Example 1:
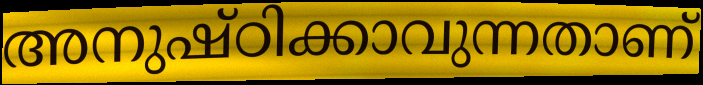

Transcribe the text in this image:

അനുഷ്ഠിക്കാവുന്നതാണ്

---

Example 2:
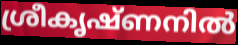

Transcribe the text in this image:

ശ്രീകൃഷ്ണനിൽ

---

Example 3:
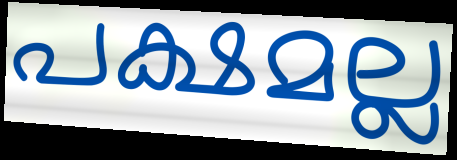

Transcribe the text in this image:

പക്ഷമല്ല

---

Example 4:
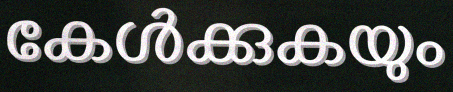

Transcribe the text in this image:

കേൾക്കുകയും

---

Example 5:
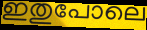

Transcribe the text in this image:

ഇതുപോലെ